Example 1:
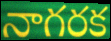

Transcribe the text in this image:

నాగరక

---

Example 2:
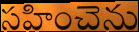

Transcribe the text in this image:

సహించెను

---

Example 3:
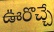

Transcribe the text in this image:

ఊరొచ్చే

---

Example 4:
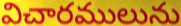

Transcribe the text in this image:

విచారములును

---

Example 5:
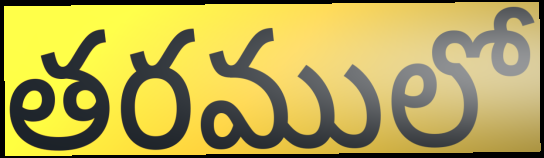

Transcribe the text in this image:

తరములో